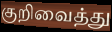
குறிவைத்து